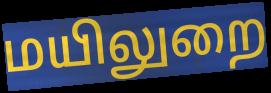
மயிலுறை